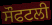
ਸੌਫਟਲੀ